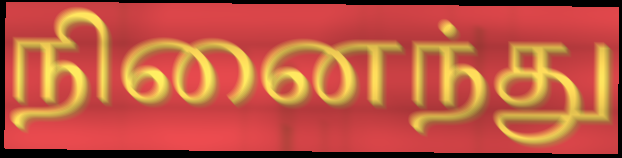
நினைந்து